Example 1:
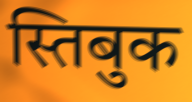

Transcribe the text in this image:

स्तिबुक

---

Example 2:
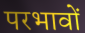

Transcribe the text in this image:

परभावों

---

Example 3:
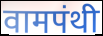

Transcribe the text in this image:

वामपंथी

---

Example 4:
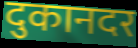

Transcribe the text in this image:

दुकानदर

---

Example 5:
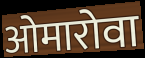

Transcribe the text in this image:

ओमारोवा